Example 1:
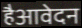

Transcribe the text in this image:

हैआवेदन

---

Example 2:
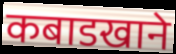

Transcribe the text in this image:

कबाडखाने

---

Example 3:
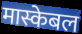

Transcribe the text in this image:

मास्केबल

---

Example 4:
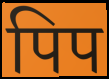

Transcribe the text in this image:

पिप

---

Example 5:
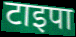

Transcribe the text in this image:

टाइपा